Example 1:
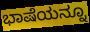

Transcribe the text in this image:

ಭಾಷೆಯನ್ನೂ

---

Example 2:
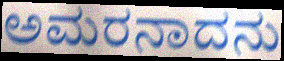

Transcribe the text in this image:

ಅಮರನಾದನು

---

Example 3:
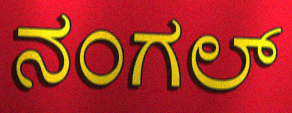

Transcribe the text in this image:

ನಂಗಲ್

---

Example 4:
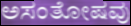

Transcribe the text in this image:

ಅಸಂತೋಷವು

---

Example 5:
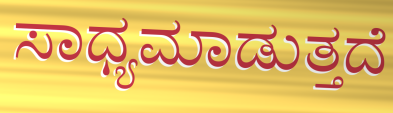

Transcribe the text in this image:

ಸಾಧ್ಯಮಾಡುತ್ತದೆ